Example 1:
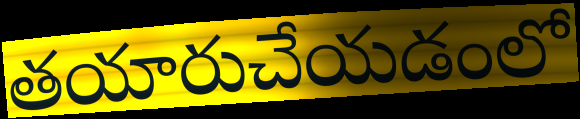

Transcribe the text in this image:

తయారుచేయడంలో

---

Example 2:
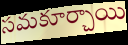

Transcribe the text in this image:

సమకూర్చాయి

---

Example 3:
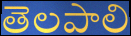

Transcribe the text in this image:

తెలపాలి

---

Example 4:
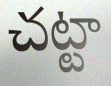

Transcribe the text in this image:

చట్టా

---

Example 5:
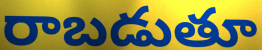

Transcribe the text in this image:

రాబడుతూ